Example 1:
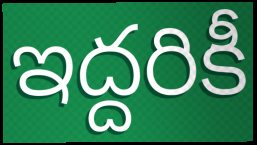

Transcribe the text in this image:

ఇద్దరికీ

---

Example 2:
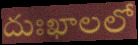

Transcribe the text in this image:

దుఃఖాలలో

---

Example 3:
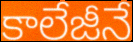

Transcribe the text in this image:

కాలేజీనే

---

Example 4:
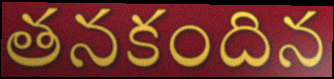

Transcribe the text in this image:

తనకందిన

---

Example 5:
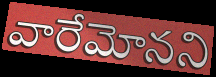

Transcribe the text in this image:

వారేమోనని